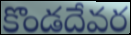
కొండదేవర